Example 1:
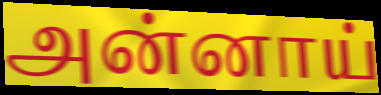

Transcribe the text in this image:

அன்னாய்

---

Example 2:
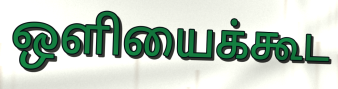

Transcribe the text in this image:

ஒளியைக்கூட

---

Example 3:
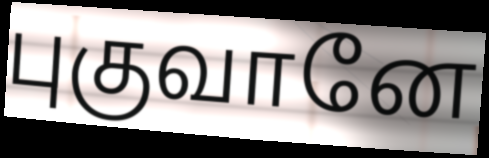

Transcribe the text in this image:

புகுவானே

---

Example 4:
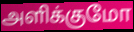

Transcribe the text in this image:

அளிக்குமோ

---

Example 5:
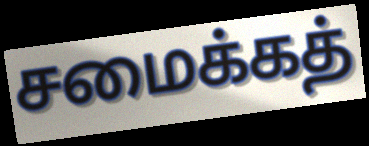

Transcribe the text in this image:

சமைக்கத்